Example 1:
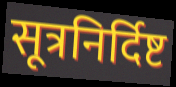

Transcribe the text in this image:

सूत्रनिर्दिष्ट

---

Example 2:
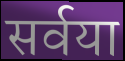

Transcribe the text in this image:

सर्वया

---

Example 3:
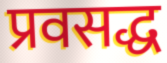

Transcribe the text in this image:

प्रवसद्ध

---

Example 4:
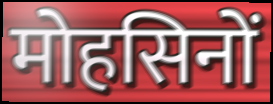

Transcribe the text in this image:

मोहसिनों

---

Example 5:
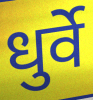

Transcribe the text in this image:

धुर्वे